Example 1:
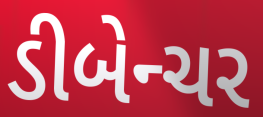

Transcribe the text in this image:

ડીબેન્ચર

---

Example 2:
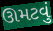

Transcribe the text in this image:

ઊમટવું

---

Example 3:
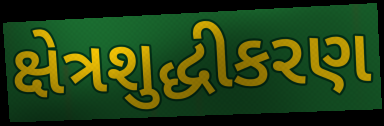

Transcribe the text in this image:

ક્ષેત્રશુદ્ધીકરણ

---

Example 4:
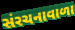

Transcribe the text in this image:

સંરચનાવાળા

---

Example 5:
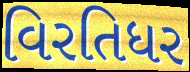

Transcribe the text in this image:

વિરતિધર